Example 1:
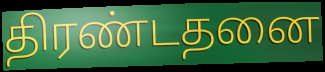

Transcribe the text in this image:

திரண்டதனை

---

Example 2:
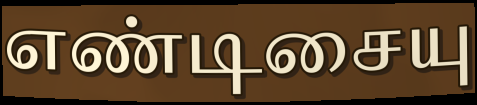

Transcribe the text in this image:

எண்டிசையு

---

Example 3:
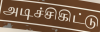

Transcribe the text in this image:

அடிச்சிகிட்டு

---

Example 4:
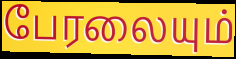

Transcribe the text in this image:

பேரலையும்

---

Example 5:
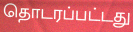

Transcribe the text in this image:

தொடரப்பட்டது